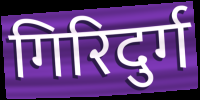
गिरिदुर्ग